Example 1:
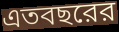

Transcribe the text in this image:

এতবছরের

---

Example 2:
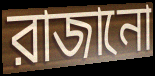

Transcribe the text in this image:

রাজানো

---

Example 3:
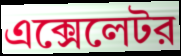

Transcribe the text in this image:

এক্সেলেটর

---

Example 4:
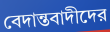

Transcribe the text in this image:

বেদান্তবাদীদের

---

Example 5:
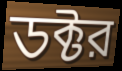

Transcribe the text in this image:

ডক্টর